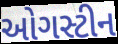
ઓગસ્ટીન